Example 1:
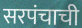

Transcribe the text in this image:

सरपंचाची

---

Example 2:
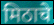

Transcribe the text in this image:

मिठाचे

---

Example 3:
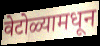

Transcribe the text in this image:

वेटोळ्यामधून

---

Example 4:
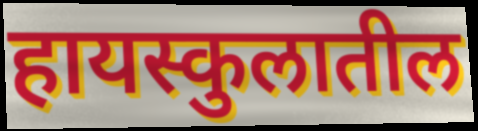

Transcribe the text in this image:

हायस्कुलातील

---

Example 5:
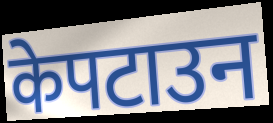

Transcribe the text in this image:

केपटाउन